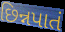
છિન્નપાતં